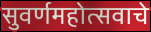
सुवर्णमहोत्सवाचे